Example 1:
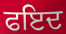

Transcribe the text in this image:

ਫਇਦ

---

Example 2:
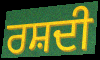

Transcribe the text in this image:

ਰਸ਼ਦੀ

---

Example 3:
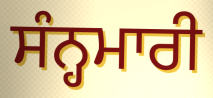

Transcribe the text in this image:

ਸੰਨ੍ਹਮਾਰੀ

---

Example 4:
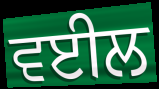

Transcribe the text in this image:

ਵਈਲ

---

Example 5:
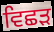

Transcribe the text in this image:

ਵਿਛਡ਼